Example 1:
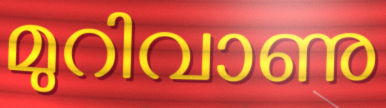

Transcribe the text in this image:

മുറിവാണു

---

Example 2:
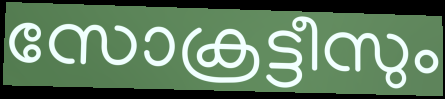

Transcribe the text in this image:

സോക്രട്ടീസും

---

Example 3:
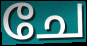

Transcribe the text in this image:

ചേ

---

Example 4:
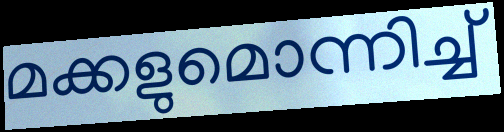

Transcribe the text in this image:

മക്കളുമൊന്നിച്ച്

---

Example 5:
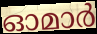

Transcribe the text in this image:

ഓമാർ